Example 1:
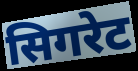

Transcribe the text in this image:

सिगरेट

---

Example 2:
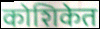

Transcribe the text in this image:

कोशिकेत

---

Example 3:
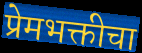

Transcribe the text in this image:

प्रेमभक्तीचा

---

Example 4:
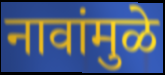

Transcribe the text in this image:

नावांमुळे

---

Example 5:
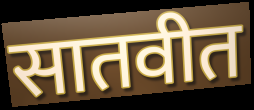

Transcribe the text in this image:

सातवीत